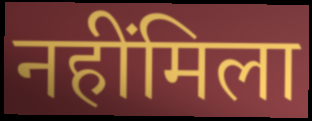
नहींमिला